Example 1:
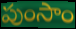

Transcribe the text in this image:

పుంసాం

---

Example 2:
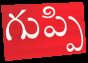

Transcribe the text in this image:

గుప్పి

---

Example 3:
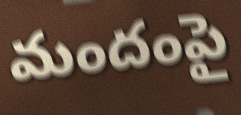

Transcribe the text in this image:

మందంపై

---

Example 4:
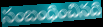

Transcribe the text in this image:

సంబంధించినది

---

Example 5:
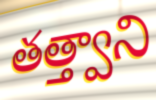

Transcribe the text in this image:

తత్త్వాని